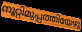
നൂറ്റിമുപ്പത്തിയേഴു